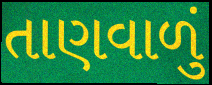
તાણવાળું